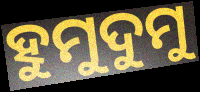
ହୁମୁଦୁମୁ